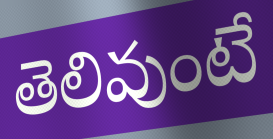
తెలివుంటే